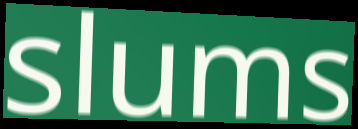
slums